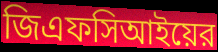
জিএফসিআইয়ের